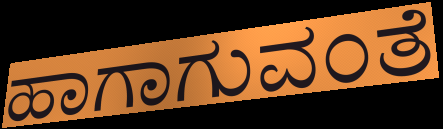
ಹಾಗಾಗುವಂತೆ